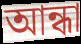
আন্ধা